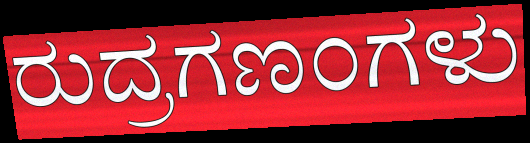
ರುದ್ರಗಣಂಗಳು